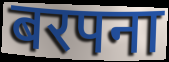
बरपना